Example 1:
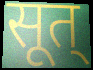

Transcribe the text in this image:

सूत्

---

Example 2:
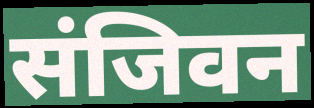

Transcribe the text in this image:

संजिवन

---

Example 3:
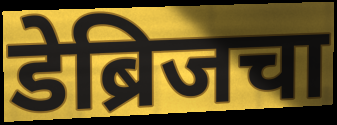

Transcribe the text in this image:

डेब्रिजचा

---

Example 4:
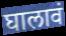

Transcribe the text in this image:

घालावं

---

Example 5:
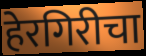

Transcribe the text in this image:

हेरगिरीचा